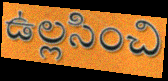
ఉల్లసించి